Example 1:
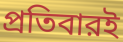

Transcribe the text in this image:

প্রতিবারই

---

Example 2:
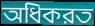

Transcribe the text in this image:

অধিকরত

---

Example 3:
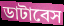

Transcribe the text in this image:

ডাটাবেস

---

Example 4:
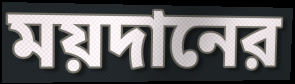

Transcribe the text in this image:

ময়দানের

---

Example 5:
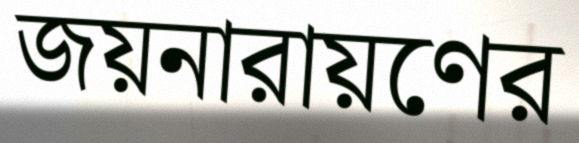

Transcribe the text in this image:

জয়নারায়ণের